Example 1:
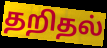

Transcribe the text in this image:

தறிதல்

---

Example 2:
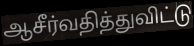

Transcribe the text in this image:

ஆசீர்வதித்துவிட்டு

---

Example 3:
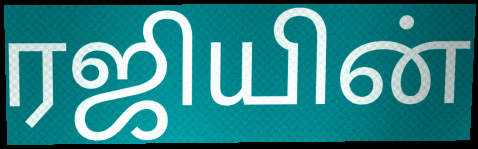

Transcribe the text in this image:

ரஜியின்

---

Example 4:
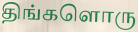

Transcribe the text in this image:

திங்களொரு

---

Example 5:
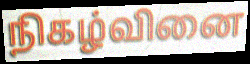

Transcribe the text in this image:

நிகழ்வினை